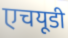
एचयूडी